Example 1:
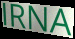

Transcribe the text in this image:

IRNA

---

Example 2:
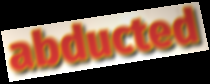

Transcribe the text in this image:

abducted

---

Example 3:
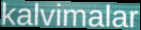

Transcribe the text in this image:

kalvimalar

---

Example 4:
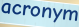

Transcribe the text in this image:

acronym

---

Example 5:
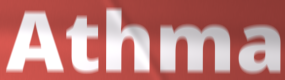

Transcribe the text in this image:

Athma